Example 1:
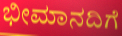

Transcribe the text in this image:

ಭೀಮಾನದಿಗೆ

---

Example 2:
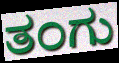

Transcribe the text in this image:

ತಂಗು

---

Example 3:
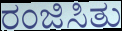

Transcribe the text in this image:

ರಂಜಿಸಿತು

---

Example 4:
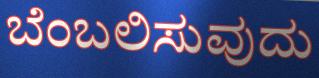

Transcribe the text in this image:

ಬೆಂಬಲಿಸುವುದು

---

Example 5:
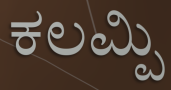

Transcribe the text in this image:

ಕಲಮ್ಪಿ